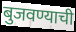
बुजवण्याची